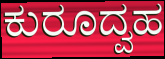
ಕುರೂದ್ವಹ